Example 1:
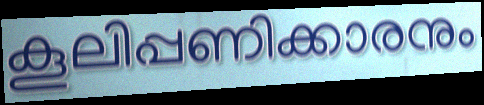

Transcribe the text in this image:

കൂലിപ്പണിക്കാരനും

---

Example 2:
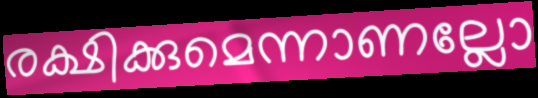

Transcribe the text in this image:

രക്ഷിക്കുമെന്നാണല്ലോ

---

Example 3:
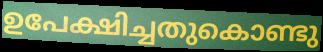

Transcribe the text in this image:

ഉപേക്ഷിച്ചതുകൊണ്ടു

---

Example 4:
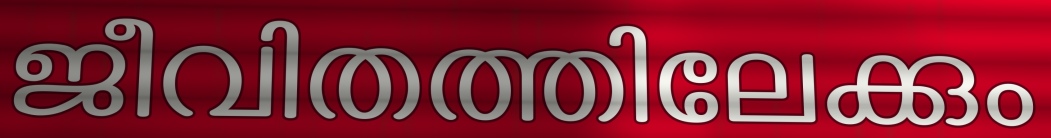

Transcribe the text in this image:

ജീവിതത്തിലേക്കും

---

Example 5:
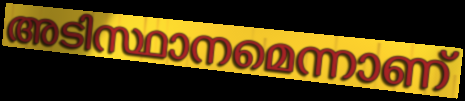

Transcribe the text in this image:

അടിസ്ഥാനമെന്നാണ്